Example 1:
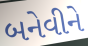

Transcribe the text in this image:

બનેવીને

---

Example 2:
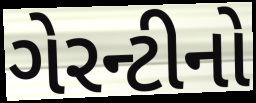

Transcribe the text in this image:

ગેરન્ટીનો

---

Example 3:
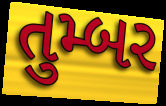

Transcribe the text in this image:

તુમ્બર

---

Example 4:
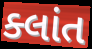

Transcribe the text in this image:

ક્લાંત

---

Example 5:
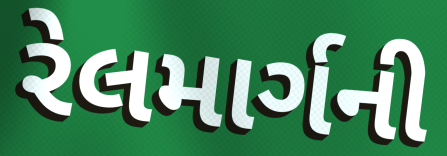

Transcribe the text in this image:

રેલમાર્ગની